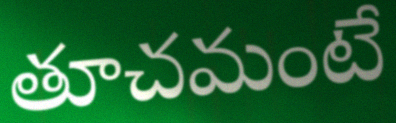
తూచమంటే